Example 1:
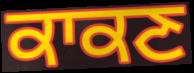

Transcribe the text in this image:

ਕਾਕਣ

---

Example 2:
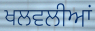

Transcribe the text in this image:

ਖਲਵਲੀਆਂ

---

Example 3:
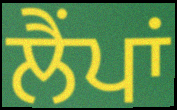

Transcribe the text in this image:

ਲੈਂਪਾਂ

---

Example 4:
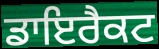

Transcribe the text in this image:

ਡਾਇਰੈਕਟ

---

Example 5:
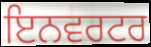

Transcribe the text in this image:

ਇਨਵਰਟਰ